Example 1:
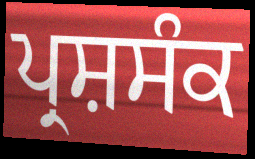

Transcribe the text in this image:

ਪ੍ਰਸ਼ਸੰਕ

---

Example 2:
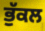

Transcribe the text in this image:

ਭੁੱਕਲ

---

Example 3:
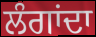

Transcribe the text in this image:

ਲੰਗਾਂਦਾ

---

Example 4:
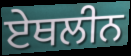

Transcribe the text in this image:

ਏਥਲੀਨ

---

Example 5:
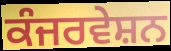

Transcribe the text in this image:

ਕੰਜਰਵੇਸ਼ਨ